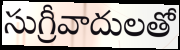
సుగ్రీవాదులతో